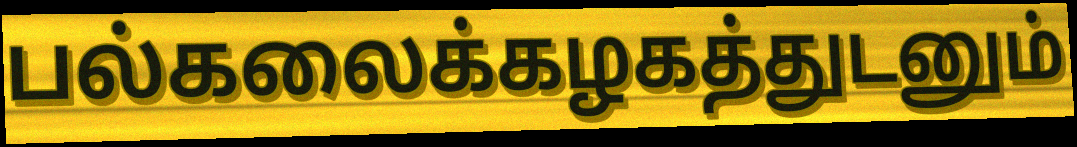
பல்கலைக்கழகத்துடனும்